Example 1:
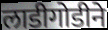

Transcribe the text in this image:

लाडीगोडीने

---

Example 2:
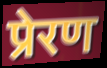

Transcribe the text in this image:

प्रेरण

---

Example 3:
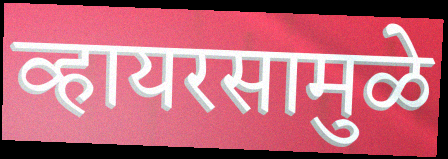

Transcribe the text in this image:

व्हायरसामुळे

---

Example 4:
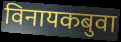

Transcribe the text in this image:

विनायकबुवा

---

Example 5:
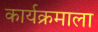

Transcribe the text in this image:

कार्यक्रमाला